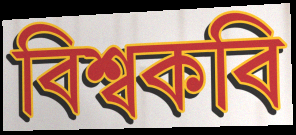
বিশ্বকবি